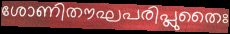
ശോണിതൗഘപരിപ്ലുതൈഃ